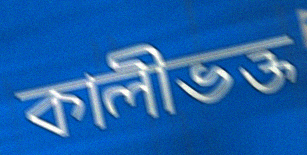
কালীভক্ত